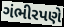
ગંભીરપણે